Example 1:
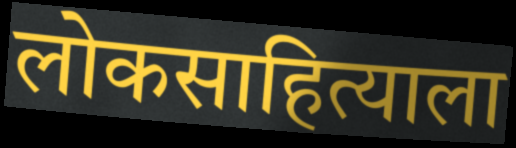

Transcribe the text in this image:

लोकसाहित्याला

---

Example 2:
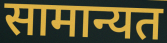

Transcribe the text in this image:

सामान्यत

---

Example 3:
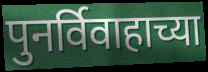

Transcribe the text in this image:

पुनर्विवाहाच्या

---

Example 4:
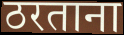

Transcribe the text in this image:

ठरताना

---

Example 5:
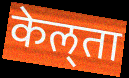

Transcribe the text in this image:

केल्ता